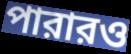
পারারও